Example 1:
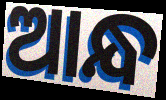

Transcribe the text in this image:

ଆନ୍ଧ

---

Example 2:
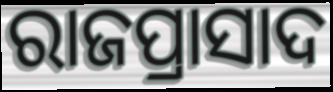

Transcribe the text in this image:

ରାଜପ୍ରାସାଦ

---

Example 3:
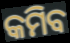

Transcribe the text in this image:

କମିବ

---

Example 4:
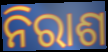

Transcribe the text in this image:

ନିରାଶ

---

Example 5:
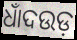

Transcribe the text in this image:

ଧାଁଦଉଡ଼